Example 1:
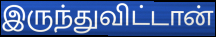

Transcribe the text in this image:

இருந்துவிட்டான்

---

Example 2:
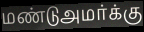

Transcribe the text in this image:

மண்டுஅமர்க்கு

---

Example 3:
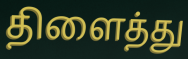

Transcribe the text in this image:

திளைத்து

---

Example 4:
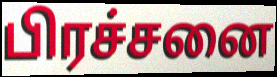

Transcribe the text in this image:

பிரச்சனை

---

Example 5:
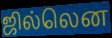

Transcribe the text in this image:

ஜில்லென